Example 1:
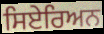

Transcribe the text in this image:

ਸਿਏਰਿਅਨ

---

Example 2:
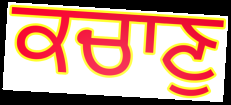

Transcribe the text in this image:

ਕਚਾਣੁ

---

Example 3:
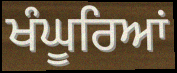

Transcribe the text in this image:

ਖੰਘੂਰਿਆਂ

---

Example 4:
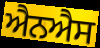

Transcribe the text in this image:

ਐਨਐਸ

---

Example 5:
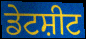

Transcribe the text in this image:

ਡੇਟਸ਼ੀਟ